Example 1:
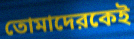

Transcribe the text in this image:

তোমাদেরকেই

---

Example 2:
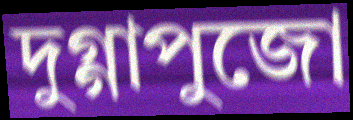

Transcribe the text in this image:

দুগ্গাপুজো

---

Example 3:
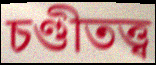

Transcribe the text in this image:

চণ্ডীতত্ত্ব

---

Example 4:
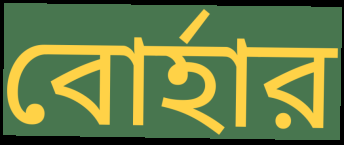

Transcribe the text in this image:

বোর্হার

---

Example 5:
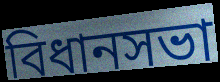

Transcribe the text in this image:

বিধানসভা